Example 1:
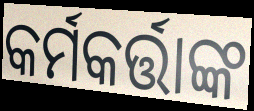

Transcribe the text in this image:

କର୍ମକର୍ତ୍ତାଙ୍କ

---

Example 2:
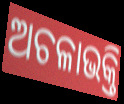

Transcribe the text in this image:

ଅଚଳାଭକ୍ତି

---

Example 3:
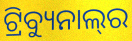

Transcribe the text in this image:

ଟ୍ରିବ୍ୟୁନାଲ୍‍ର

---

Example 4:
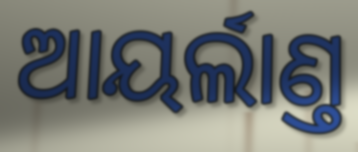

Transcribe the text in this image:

ଆୟର୍ଲାଣ୍ତ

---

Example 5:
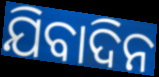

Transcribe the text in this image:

ଯିବାଦିନ